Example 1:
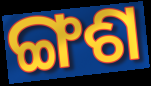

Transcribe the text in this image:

ଙ୍ଗଶ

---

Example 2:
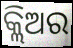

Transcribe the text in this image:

କ୍ଲିଅର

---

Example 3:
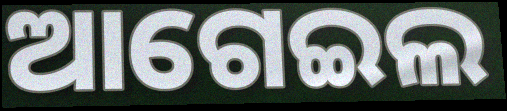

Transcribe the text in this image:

ଆଗେଇଲ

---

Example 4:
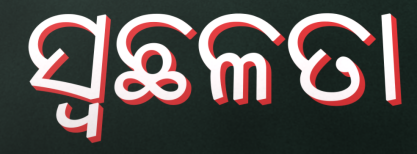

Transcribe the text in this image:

ସ୍ୱଛଳତା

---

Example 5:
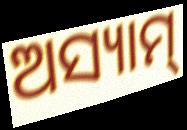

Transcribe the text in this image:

ଅସ୍ୟାମ୍